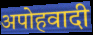
अपोहवादी